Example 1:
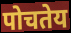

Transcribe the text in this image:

पोचतेय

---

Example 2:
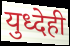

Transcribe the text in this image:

युध्देही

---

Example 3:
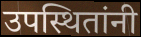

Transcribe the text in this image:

उपस्थितांनी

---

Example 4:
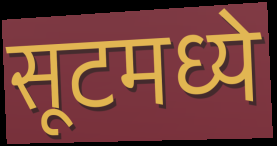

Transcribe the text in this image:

सूटमध्ये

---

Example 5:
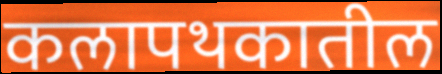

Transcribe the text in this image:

कलापथकातील